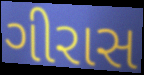
ગીરાસ